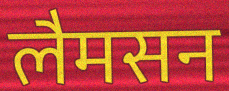
लैमसन